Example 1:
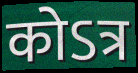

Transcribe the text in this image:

कोऽत्र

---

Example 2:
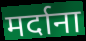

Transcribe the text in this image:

मर्दाना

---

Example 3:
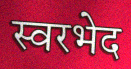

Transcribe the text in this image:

स्वरभेद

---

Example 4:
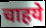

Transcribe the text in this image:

चाहये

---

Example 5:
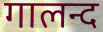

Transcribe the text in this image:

गालन्द